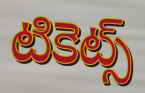
టికెట్స్